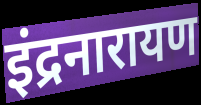
इंद्रनारायण